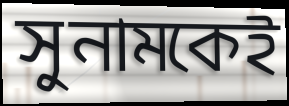
সুনামকেই